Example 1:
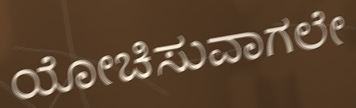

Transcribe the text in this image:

ಯೋಚಿಸುವಾಗಲೇ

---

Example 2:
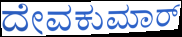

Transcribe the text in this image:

ದೇವಕುಮಾರ್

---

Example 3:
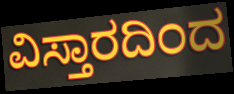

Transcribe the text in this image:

ವಿಸ್ತಾರದಿಂದ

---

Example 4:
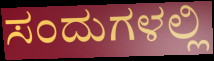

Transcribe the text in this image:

ಸಂದುಗಳಲ್ಲಿ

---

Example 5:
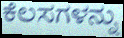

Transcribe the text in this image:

ಕೆಲಸಗಳನ್ನು